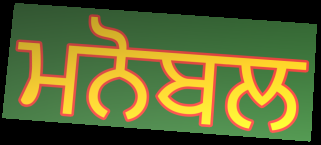
ਮਨੋਬਲ